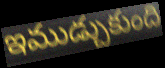
ఇముడ్చుకుంది